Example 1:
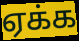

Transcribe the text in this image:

ஏக்க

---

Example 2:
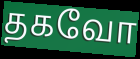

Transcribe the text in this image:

தகவோ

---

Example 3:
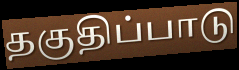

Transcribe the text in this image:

தகுதிப்பாடு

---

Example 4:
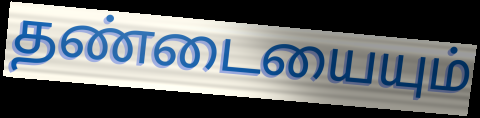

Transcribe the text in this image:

தண்டையையும்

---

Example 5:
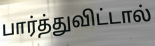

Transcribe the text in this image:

பார்த்துவிட்டால்